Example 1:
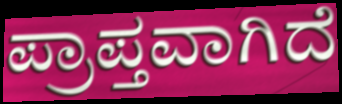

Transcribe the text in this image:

ಪ್ರಾಪ್ತವಾಗಿದೆ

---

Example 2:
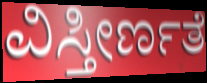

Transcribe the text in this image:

ವಿಸ್ತೀರ್ಣತೆ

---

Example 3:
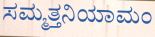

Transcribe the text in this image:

ಸಮ್ಮತ್ತನಿಯಾಮಂ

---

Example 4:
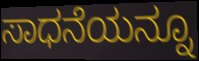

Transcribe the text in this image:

ಸಾಧನೆಯನ್ನೂ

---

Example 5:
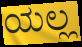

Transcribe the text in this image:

ಯಲ್ಲ